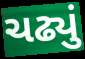
ચઢ્યું